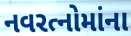
નવરત્નોમાંના